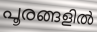
പൂരങ്ങളിൽ